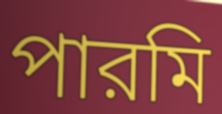
পারমি